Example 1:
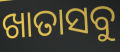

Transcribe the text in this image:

ଖାତାସବୁ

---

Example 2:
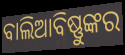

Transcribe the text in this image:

ବାଲିଆବିଷ୍ଣୁଙ୍କର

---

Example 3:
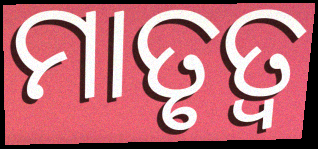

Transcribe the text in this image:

ମାତୃତ୍ୱ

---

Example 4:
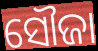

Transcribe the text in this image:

ସୌଜା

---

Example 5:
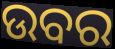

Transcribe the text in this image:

ଉବର